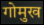
गोमुख